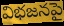
విభజనపై